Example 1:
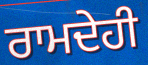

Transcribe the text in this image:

ਰਾਮਦੇਹੀ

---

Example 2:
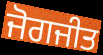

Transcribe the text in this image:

ਜੋਗਜੀਤ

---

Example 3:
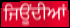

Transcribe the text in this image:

ਜਿਊਂਦੀਆਂ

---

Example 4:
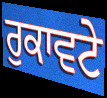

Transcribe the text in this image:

ਰੁਕਾਵਟੇ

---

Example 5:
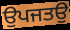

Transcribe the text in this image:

ਉਪਜਤਉ